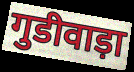
गुडीवाड़ा